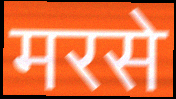
मरसे